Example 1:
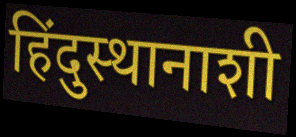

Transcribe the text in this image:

हिंदुस्थानाशी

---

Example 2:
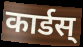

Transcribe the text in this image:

कार्डस्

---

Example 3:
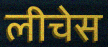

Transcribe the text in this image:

लीचेस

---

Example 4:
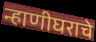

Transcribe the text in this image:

न्हाणीघराचे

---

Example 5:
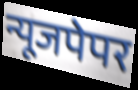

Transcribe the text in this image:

न्यूजपेपर